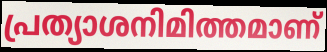
പ്രത്യാശനിമിത്തമാണ്